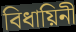
বিধায়িনী